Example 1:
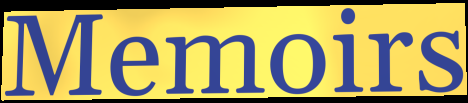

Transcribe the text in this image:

Memoirs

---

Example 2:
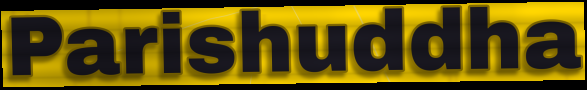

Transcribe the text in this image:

Parishuddha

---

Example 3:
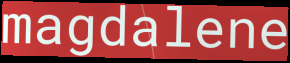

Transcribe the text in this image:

magdalene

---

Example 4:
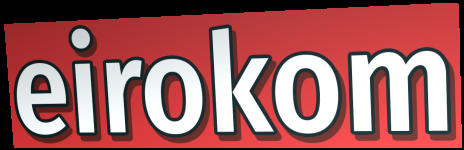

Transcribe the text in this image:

eirokom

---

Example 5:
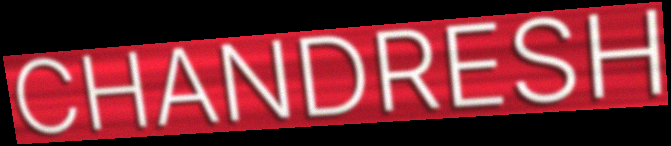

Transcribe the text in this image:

CHANDRESH